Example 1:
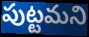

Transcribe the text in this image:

పుట్టమని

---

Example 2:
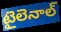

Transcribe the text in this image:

టైలెనాల్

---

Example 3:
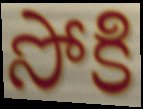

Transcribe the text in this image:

సోకి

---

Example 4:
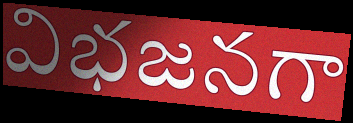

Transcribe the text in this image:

విభజనగా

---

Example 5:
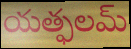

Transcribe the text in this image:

యత్ఫలమ్